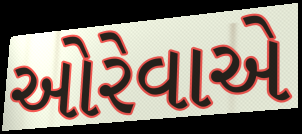
ઓરેવાએ